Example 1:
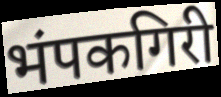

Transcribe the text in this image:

भंपकगिरी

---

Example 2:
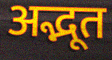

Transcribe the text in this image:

अद्भूत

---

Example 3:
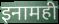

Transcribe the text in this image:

इनामही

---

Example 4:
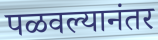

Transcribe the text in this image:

पळवल्यानंतर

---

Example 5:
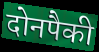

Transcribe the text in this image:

दोनपैकी